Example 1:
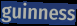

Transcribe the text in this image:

guinness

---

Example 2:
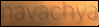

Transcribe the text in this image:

navachya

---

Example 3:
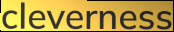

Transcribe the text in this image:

cleverness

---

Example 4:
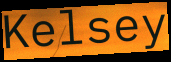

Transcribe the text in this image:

Kelsey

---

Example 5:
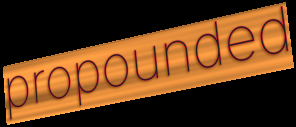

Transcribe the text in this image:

propounded